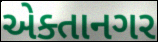
એક્તાનગર